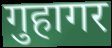
गुहागर